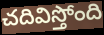
చదివిస్తోంది